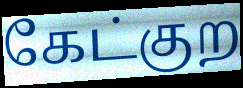
கேட்குற